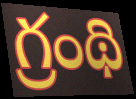
గ్రంథి